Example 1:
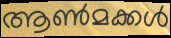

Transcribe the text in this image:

ആൺമക്കൾ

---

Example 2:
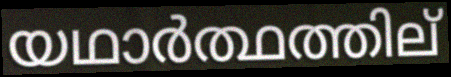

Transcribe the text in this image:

യഥാർത്ഥത്തില്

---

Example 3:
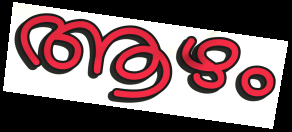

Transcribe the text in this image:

ആഴം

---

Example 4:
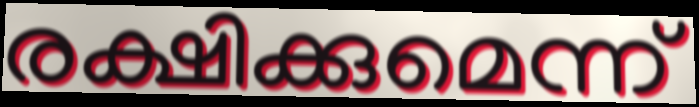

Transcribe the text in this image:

രക്ഷിക്കുമെന്ന്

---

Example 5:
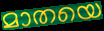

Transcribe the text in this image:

മാതയെ